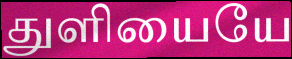
துளியையே